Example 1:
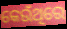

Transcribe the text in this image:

କେଉଁଥିରେ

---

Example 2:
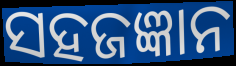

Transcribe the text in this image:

ସହଜଜ୍ଞାନ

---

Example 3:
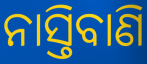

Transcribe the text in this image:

ନାସ୍ତିବାଣି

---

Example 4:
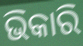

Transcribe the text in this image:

ଭିକାରି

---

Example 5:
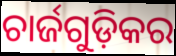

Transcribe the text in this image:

ଚାର୍ଜଗୁଡ଼ିକର